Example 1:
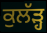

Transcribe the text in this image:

ਕੁਲੱੜ੍ਹ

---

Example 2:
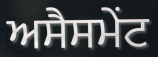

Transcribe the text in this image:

ਅਸੈਸਮੇਂਟ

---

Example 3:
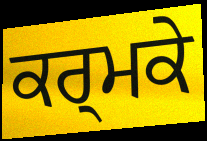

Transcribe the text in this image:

ਕਰ੍ਮਕੇ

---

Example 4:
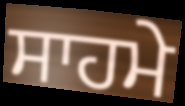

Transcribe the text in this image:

ਸਾਹਮੇ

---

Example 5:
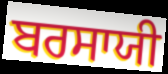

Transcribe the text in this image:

ਬਰਸਾਯੀ